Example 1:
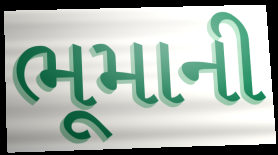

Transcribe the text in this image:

ભૂમાની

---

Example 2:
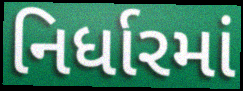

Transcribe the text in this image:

નિર્ધારમાં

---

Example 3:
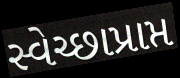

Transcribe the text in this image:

સ્વેચ્છાપ્રાપ્ત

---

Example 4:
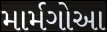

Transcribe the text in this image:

માર્મગોઆ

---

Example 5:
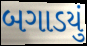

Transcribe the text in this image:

બગાડયું